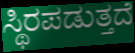
ಸ್ಥಿರಪಡುತ್ತದೆ